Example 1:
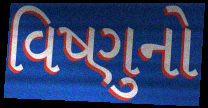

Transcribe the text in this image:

વિષ્ણુનો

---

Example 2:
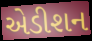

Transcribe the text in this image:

એડીશન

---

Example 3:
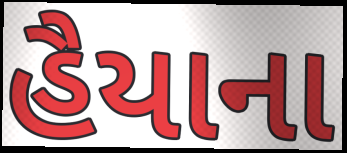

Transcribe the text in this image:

હૈયાના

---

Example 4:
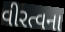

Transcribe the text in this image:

વીરત્વના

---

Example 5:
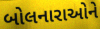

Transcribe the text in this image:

બોલનારાઓને